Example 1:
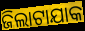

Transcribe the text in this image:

ଜିଲାଟାଯାକ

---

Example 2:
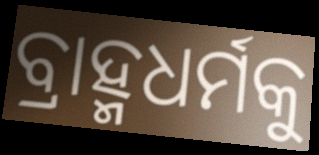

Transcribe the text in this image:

ବ୍ରାହ୍ମଧର୍ମକୁ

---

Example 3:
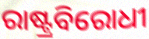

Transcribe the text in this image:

ରାଷ୍ଟ୍ରବିରୋଧୀ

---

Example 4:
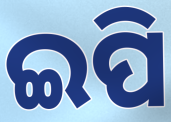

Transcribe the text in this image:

ଇପି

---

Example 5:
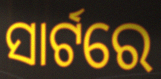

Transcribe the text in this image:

ସାର୍ଟରେ